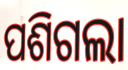
ପଶିଗଲା